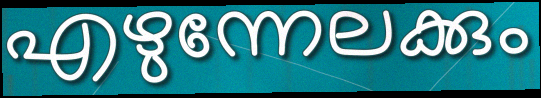
എഴുന്നേലക്കും